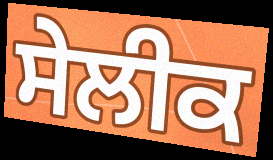
ਸੇਲੀਕ